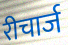
रीचार्ज